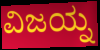
ವಿಜಯ್ನ